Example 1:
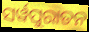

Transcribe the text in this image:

ସର୍ୱପୁରାତନ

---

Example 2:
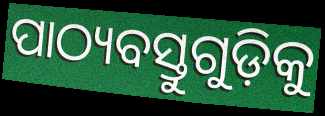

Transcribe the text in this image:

ପାଠ୍ୟବସ୍ତୁଗୁଡ଼ିକୁ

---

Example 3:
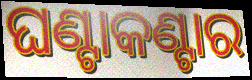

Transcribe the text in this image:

ଘଣ୍ଟାକଣ୍ଟାର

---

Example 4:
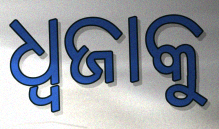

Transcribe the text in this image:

ଧ୍ୱଜାକୁ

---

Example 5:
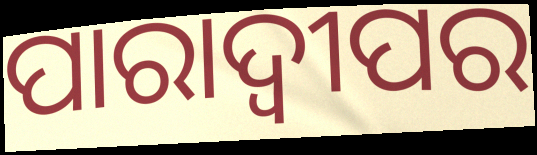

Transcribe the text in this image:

ପାରାଦ୍ବୀପର